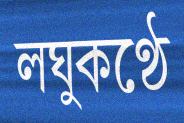
লঘুকণ্ঠে